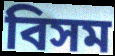
বিসম